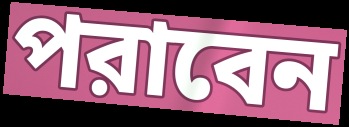
পরাবেন